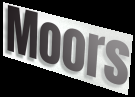
Moors